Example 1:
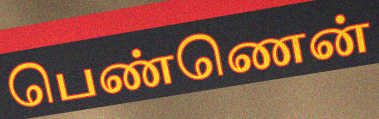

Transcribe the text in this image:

பெண்ணென்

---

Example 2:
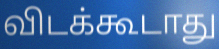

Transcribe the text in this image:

விடக்கூடாது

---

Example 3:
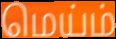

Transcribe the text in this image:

மெய்ம்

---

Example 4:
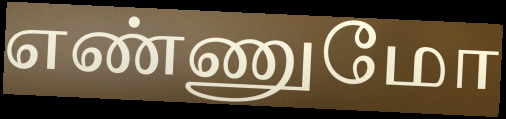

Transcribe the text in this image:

எண்ணுமோ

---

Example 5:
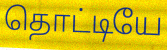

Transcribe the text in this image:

தொட்டியே